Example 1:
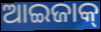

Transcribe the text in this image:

ଆଇଜାକ୍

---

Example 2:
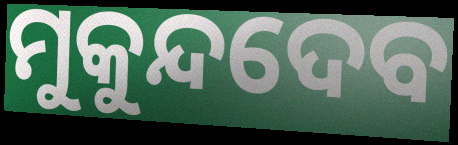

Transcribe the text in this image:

ମୁକୁନ୍ଦଦେବ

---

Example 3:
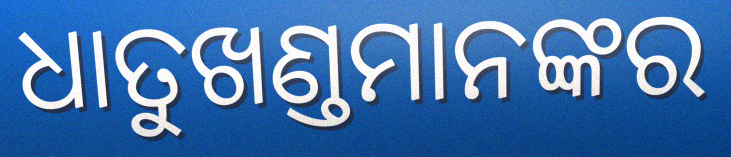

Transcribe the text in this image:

ଧାତୁଖଣ୍ଡମାନଙ୍କର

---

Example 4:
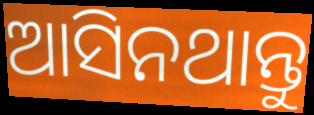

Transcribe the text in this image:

ଆସିନଥାନ୍ତୁ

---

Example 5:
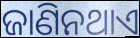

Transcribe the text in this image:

ଜାଣିନଥାଏ